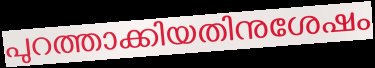
പുറത്താക്കിയതിനുശേഷം